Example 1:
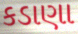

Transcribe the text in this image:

કડાણા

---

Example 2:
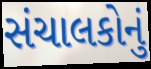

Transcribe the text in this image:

સંચાલકોનું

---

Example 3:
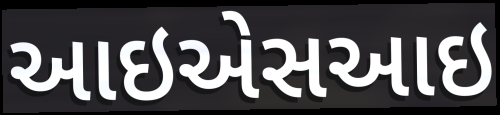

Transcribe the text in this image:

આઇએસઆઇ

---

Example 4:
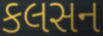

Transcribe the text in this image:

કલસન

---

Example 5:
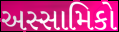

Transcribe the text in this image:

અસ્સામિકો